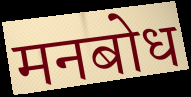
मनबोध